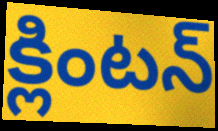
క్లింటన్